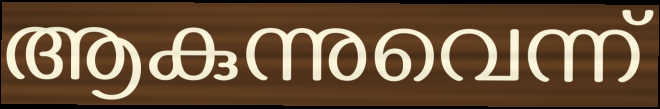
ആകുന്നുവെന്ന്